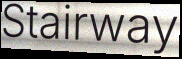
Stairway